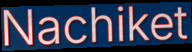
Nachiket